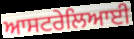
ਆਸਟਰੇਲਿਆਈ